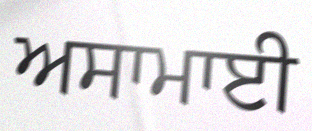
ਅਸਾਮਾਈ